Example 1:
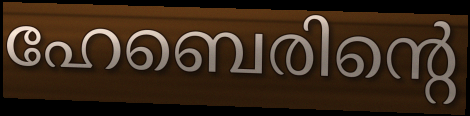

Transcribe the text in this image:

ഹേബെരിന്റെ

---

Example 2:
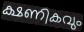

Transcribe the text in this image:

ക്ഷണികവും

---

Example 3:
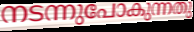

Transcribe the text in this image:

നടന്നുപോകുന്നതു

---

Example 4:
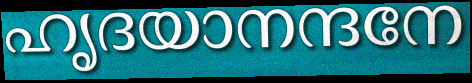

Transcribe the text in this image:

ഹൃദയാനന്ദനേ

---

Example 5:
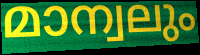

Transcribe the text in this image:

മാന്വലും